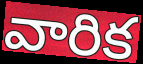
వారిక